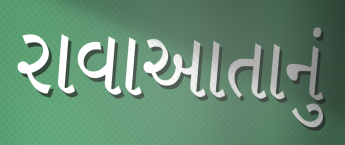
રાવાઆતાનું